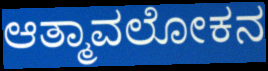
ಆತ್ಮಾವಲೋಕನ